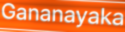
Gananayaka